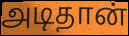
அடிதான்